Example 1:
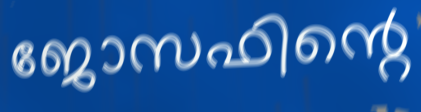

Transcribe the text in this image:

ജോസഫിന്റെ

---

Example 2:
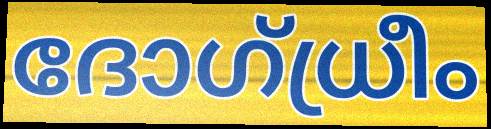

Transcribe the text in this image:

ദോഗ്ധ്രീം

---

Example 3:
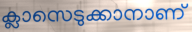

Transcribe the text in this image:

ക്ലാസെടുക്കാനാണ്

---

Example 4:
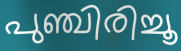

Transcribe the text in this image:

പുഞ്ചിരിച്ചൂ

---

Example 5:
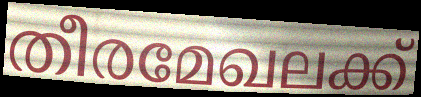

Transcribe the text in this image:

തീരമേഖലക്ക്